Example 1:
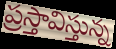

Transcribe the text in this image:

ప్రస్తావిస్తున్న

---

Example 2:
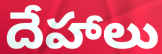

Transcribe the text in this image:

దేహాలు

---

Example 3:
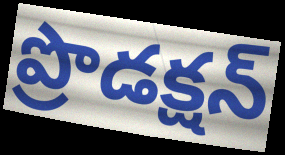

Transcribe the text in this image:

ప్రొడక్షన్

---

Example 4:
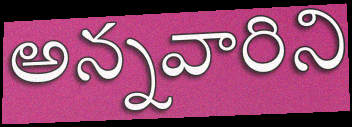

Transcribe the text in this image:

అన్నవారిని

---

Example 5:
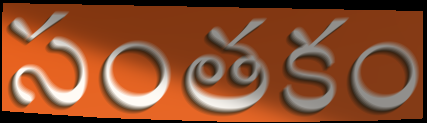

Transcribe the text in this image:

సంతకం